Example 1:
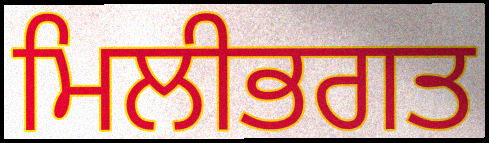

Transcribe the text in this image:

ਮਿਲੀਭਗਤ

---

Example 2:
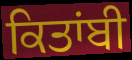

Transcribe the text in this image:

ਕਿਤਾਂਬੀ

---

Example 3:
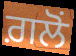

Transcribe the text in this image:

ਗ਼ਲੋਂ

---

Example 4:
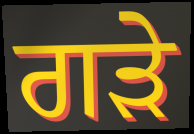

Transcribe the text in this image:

ਗੜੇ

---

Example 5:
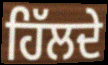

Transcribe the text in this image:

ਹਿੱਲਦੇ